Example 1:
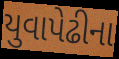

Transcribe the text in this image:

યુવાપેઢીના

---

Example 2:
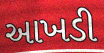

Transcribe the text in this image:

આખડી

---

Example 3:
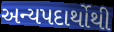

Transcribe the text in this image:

અન્યપદાર્થોથી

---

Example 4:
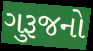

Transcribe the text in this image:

ગુરૂજનો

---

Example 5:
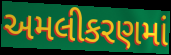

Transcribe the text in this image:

અમલીકરણમાં